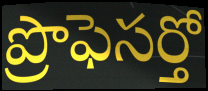
ప్రొఫెసర్తో